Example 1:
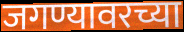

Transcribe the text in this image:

जगण्यावरच्या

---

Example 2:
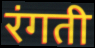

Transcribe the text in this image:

रंगती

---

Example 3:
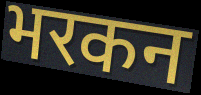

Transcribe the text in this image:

भरकन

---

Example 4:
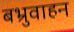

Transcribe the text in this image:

बभ्रुवाहन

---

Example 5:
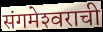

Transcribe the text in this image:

संगमेश्वराची